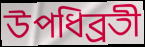
উপধিব্রতী